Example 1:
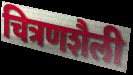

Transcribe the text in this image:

चित्रणशैली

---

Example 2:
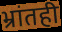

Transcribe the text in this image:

भ्रांतही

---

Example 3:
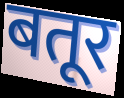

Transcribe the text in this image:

बतूर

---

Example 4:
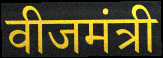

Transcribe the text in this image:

वीजमंत्री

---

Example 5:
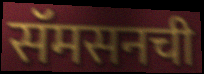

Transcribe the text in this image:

सॅमसनची